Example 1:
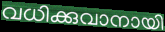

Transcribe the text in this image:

വധിക്കുവാനായി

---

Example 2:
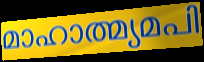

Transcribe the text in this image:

മാഹാത്മ്യമപി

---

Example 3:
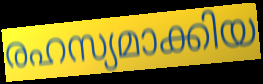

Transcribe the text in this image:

രഹസ്യമാക്കിയ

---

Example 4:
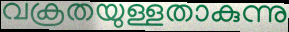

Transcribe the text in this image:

വക്രതയുള്ളതാകുന്നു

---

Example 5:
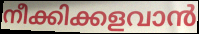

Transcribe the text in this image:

നീക്കിക്കളവാൻ